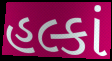
હલ્કાં